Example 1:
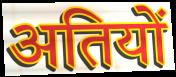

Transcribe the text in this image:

अतियों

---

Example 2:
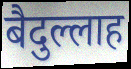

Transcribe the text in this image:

बैदुल्लाह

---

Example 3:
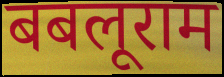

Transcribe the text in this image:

बबलूराम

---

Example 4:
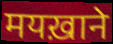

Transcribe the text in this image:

मयख़ाने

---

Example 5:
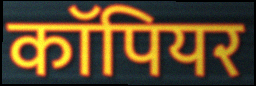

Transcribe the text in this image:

कॉपियर